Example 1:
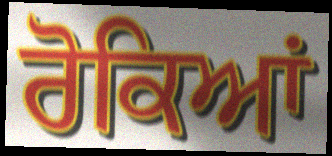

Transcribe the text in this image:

ਰੋਕਿਆਂ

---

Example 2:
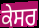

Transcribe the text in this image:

ਕੇਸਰ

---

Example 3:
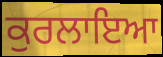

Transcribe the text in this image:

ਕੁਰਲਾਇਆ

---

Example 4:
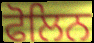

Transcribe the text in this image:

ਫੋਲਿਨ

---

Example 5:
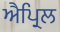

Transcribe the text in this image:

ਐਪ੍ਰਿਲ